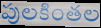
పులకింతల